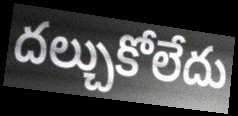
దల్చుకోలేదు